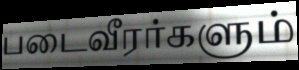
படைவீரர்களும்